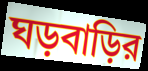
ঘড়বাড়ির